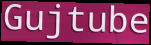
Gujtube